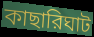
কাছারিঘাট